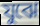
যুঝে